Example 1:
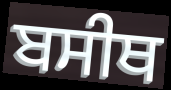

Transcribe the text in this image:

ਬਸੀਥ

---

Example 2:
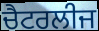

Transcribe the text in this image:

ਚੈਟਰਲੀਜ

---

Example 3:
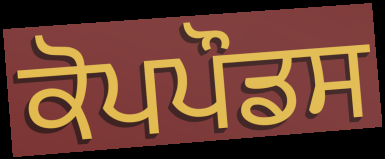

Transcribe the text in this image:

ਕੋਪਪੌਡਸ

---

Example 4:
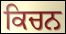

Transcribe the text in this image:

ਕਿਚਨ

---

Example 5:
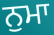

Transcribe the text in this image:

ਨੁਮਾ